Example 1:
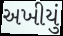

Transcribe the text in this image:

અખીયું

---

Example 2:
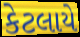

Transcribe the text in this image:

કેટલાયે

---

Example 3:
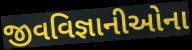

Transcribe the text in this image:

જીવવિજ્ઞાનીઓના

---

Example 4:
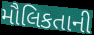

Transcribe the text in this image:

મૌલિકતાની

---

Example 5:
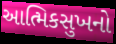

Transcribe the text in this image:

આત્મિકસુખનો